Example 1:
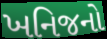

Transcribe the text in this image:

ખનિજનો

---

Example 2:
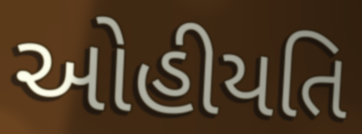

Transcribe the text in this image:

ઓહીયતિ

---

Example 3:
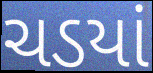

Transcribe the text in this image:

ચડયાં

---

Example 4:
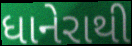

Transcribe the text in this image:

ધાનેરાથી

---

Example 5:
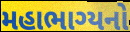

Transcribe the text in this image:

મહાભાગ્યનો